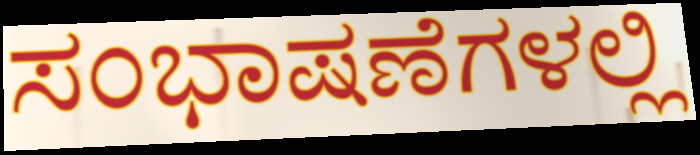
ಸಂಭಾಷಣೆಗಳಲ್ಲಿ